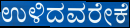
ಉಳಿದವರೇಕೆ